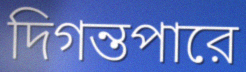
দিগন্তপারে